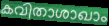
കവിതാശാഖാം